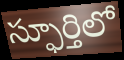
స్ఫూర్తిలో